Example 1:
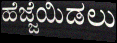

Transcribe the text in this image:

ಹೆಜ್ಜೆಯಿಡಲು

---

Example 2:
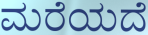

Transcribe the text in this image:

ಮರೆಯದೆ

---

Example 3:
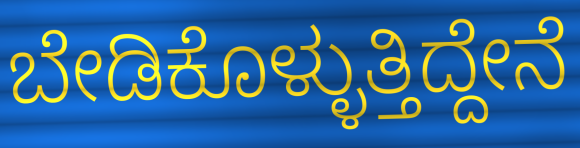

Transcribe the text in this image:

ಬೇಡಿಕೊಳ್ಳುತ್ತಿದ್ದೇನೆ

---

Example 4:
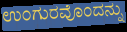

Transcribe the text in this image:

ಉಂಗುರವೊಂದನ್ನು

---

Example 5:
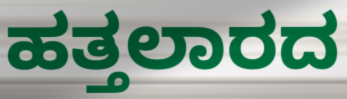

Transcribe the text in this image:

ಹತ್ತಲಾರದ